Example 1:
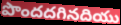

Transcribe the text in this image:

పొందదగినదియు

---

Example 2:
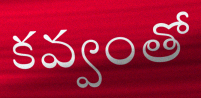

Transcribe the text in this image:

కవ్వంతో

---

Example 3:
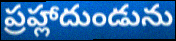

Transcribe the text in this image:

ప్రహ్లాదుండును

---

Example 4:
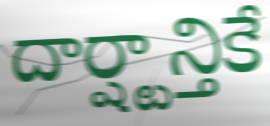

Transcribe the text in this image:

దార్ష్టాన్తికే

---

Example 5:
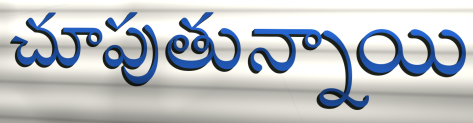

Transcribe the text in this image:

చూపుతున్నాయి